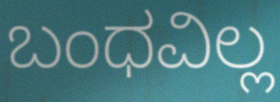
ಬಂಧವಿಲ್ಲ